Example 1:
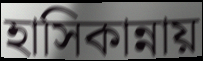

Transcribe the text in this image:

হাসিকান্নায়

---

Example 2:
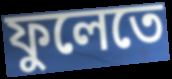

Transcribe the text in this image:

ফুলেতে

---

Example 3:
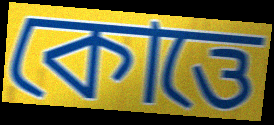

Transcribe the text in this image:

কোত্তে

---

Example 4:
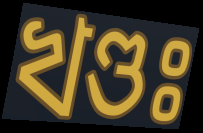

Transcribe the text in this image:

খণ্ডঃ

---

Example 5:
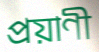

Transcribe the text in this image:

প্রয়াণী